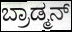
ಬ್ರಾಡ್ಮನ್